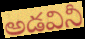
అడవినీ